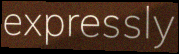
expressly